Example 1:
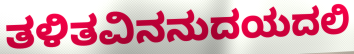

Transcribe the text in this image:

ತಳಿತವಿನನುದಯದಲಿ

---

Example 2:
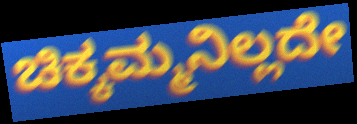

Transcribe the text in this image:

ಚಿಕ್ಕಮ್ಮನಿಲ್ಲದೇ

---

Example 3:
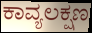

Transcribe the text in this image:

ಕಾವ್ಯಲಕ್ಷಣ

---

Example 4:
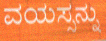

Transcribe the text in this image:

ವಯಸ್ಸನ್ನು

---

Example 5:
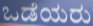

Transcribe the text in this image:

ಒಡೆಯರು